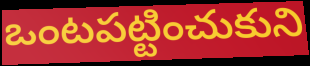
ఒంటపట్టించుకుని